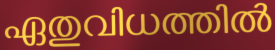
ഏതുവിധത്തിൽ